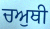
ਚਅੁਥੀ